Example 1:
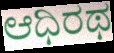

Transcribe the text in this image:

ಆಧಿರಥ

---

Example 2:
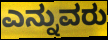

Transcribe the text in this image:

ಎನ್ನುವರು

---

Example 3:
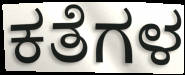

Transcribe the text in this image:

ಕತೆಗಳ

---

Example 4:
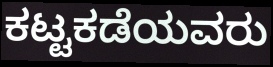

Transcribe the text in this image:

ಕಟ್ಟಕಡೆಯವರು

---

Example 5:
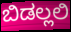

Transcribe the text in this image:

ಬಿಡಲ್ಲಲಿ